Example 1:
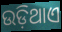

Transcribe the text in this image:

ଉଡ଼ିଥାଏ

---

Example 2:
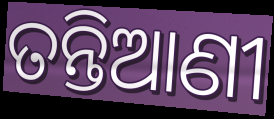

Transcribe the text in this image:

ତନ୍ତିଆଣୀ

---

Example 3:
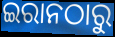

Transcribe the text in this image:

ଇରାନଠାରୁ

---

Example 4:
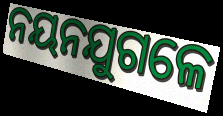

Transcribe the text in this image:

ନୟନଯୁଗଳେ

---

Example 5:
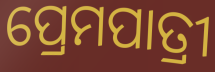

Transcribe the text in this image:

ପ୍ରେମପାତ୍ରୀ